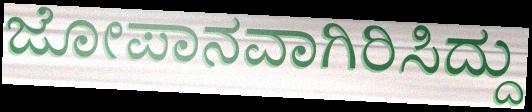
ಜೋಪಾನವಾಗಿರಿಸಿದ್ದು